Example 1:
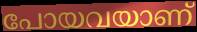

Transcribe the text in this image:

പോയവയാണ്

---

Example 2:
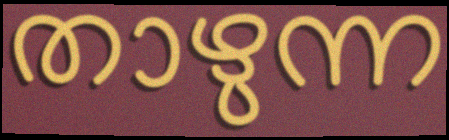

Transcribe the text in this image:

താഴുന്ന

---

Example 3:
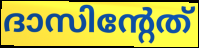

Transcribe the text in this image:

ദാസിന്റേത്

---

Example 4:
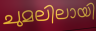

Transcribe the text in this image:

ചുമലിലായി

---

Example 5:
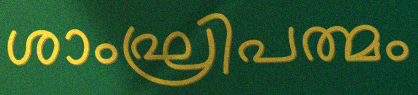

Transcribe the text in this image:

ശാംഘ്രിപത്മം